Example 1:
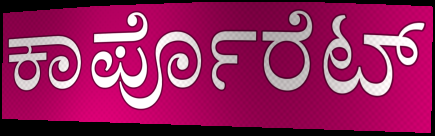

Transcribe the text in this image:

ಕಾರ್ಪೊರೆಟ್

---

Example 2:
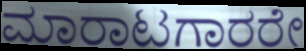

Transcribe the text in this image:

ಮಾರಾಟಗಾರರೇ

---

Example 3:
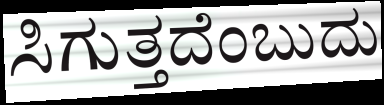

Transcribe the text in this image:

ಸಿಗುತ್ತದೆಂಬುದು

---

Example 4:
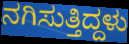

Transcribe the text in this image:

ನಗಿಸುತ್ತಿದ್ದಳು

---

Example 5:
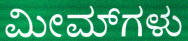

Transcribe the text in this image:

ಮೀಮ್‌ಗಳು